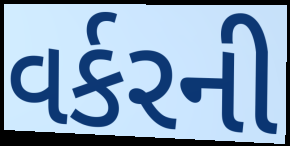
વર્કરની